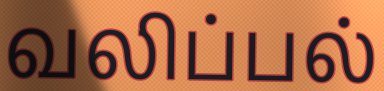
வலிப்பல்